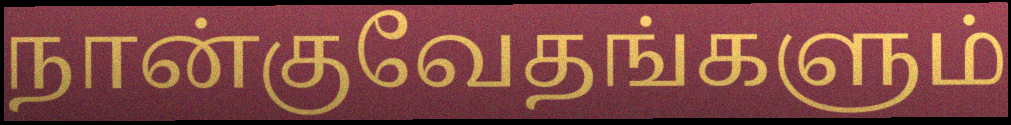
நான்குவேதங்களும்